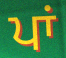
ਪਾਂ